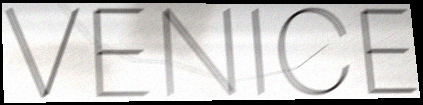
VENICE